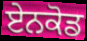
ਏਨਕੋਡ